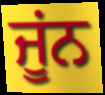
ਜੂਂਨ